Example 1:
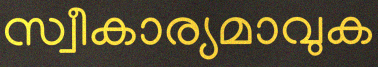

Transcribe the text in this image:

സ്വീകാര്യമാവുക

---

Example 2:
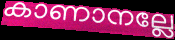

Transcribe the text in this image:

കാണാനല്ലേ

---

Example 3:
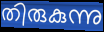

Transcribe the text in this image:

തിരുകുന്നു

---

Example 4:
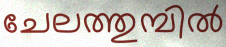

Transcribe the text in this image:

ചേലത്തുമ്പിൽ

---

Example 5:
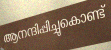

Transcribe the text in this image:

ആനന്ദിപ്പിച്ചുകൊണ്ട്